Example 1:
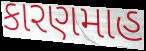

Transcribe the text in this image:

કારણમાહ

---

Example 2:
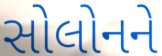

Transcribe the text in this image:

સોલોનને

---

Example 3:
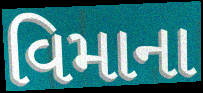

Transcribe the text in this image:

વિમાના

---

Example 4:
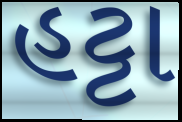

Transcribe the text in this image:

હટ્ટા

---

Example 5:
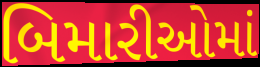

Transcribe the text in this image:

બિમારીઓમાં